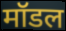
मॉडल